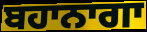
ਬਹਾਨਾਗਾ